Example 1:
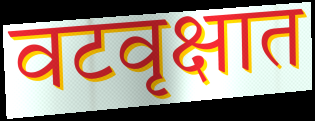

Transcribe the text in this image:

वटवृक्षात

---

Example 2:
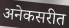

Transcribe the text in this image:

अनेकसरीत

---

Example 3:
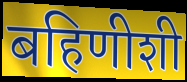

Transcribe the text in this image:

बहिणीशी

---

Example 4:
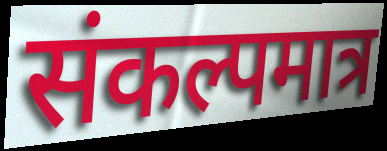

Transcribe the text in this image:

संकल्पमात्र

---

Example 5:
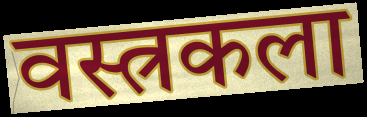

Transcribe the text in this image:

वस्त्रकला